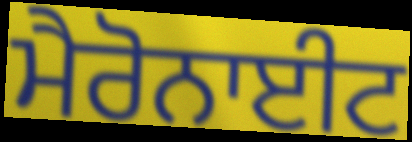
ਮੈਰੋਨਾਈਟ